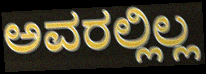
ಅವರಲ್ಲಿಲ್ಲ